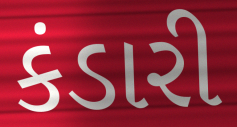
કંડારી